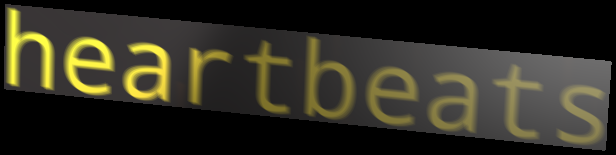
heartbeats